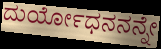
ದುರ್ಯೋಧನನನ್ನೇ